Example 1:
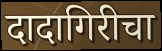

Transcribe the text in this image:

दादागिरीचा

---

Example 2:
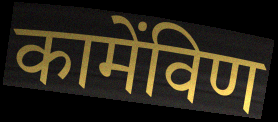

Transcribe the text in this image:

कामेंविण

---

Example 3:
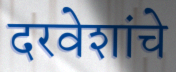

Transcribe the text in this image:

दरवेशांचे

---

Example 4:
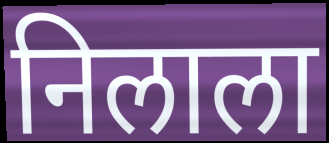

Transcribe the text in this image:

निलाला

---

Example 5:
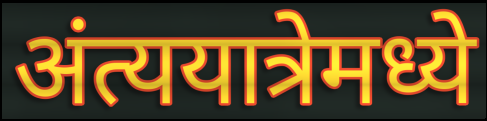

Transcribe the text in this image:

अंत्ययात्रेमध्ये